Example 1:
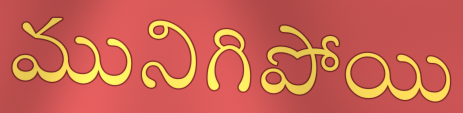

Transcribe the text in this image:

మునిగిపోయి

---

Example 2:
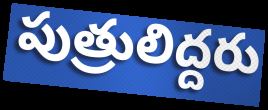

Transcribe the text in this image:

పుత్రులిద్దరు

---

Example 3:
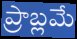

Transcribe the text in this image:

ప్రాబ్లమే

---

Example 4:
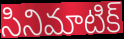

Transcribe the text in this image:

సినిమాటిక్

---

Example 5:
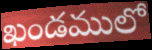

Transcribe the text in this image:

ఖండములో